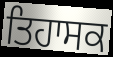
ਤਿਹਾਸਕ